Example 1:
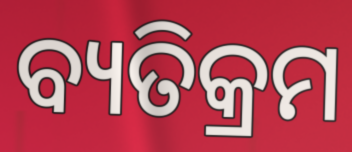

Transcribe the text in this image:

ବ୍ୟତିକ୍ରମ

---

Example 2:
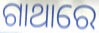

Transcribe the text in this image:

ଗାଥାରେ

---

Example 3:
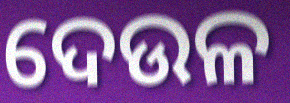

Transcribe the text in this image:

ଦେଉଳ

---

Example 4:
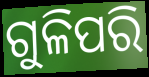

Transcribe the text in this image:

ଗୁଳିପରି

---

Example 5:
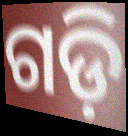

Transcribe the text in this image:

ଗଡ଼ି